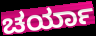
ಚರ್ಯಾ